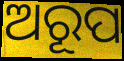
ଅରୂପ